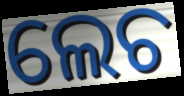
ଲେଚ